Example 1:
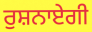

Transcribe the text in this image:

ਰੁਸ਼ਨਾਏਗੀ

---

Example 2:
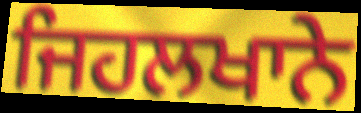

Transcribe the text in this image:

ਜਿਹਲਖਾਨੇ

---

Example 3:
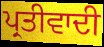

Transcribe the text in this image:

ਪ੍ਰਤੀਵਾਦੀ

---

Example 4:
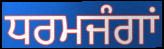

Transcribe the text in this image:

ਧਰਮਜੰਗਾਂ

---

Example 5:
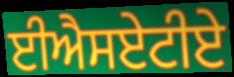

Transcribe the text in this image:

ਈਐਸਏਟੀਏ